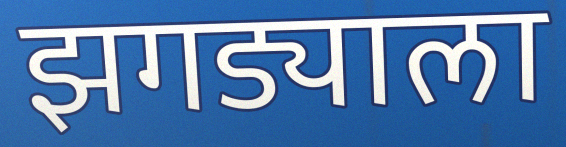
झगड्याला